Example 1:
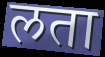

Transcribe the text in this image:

लता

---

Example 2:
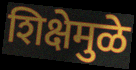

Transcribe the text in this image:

शिक्षेमुळे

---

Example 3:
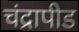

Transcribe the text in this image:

चंद्रापीड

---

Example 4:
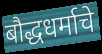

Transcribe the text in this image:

बौद्धधर्माचे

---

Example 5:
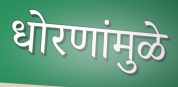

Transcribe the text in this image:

धोरणांमुळे